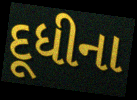
દૂધીના